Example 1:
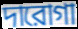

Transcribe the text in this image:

দারোগা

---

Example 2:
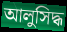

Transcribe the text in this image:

আলুসিদ্ধ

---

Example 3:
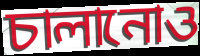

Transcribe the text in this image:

চালানোও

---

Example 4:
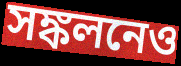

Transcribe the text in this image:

সঙ্কলনেও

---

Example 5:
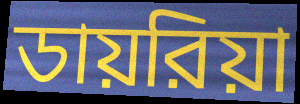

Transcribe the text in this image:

ডায়রিয়া